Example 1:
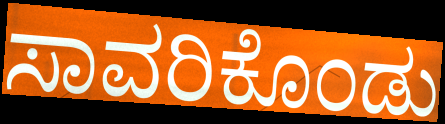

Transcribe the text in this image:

ಸಾವರಿಕೊಂಡು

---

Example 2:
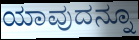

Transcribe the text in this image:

ಯಾವುದನ್ನೂ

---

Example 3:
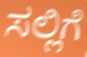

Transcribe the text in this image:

ಸಲ್ಲಿಗೆ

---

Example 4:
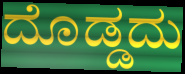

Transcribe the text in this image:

ದೊಡ್ಡದು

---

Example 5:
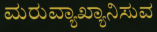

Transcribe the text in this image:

ಮರುವ್ಯಾಖ್ಯಾನಿಸುವ